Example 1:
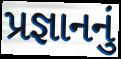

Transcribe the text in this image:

પ્રજ્ઞાનનું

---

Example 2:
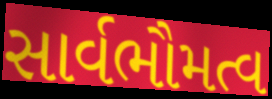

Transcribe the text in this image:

સાર્વભૌમત્વ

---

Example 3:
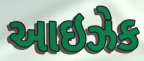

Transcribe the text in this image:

આઇઝેક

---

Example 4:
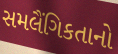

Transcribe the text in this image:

સમલૈંગિકતાનો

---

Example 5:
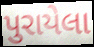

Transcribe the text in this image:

પુરાયેલા